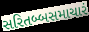
સરિતબ્બસમાચારં